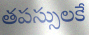
తపస్సులకే